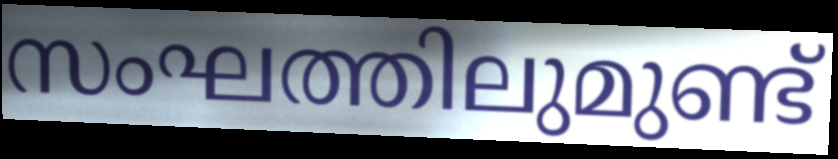
സംഘത്തിലുമുണ്ട്